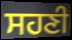
ਸਹਣੀ